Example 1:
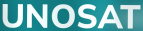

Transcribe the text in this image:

UNOSAT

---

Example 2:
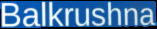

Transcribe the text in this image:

Balkrushna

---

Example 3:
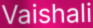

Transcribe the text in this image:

Vaishali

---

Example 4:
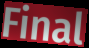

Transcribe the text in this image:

Final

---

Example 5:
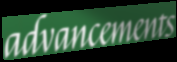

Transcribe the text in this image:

advancements